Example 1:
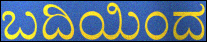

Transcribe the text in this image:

ಬದಿಯಿಂದ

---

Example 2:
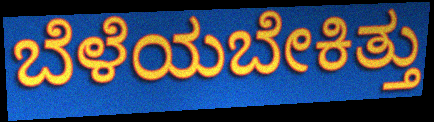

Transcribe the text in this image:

ಬೆಳೆಯಬೇಕಿತ್ತು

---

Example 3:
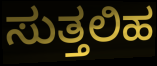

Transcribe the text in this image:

ಸುತ್ತಲಿಹ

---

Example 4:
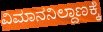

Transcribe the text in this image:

ವಿಮಾನನಿಲ್ದಾಣಕ್ಕೆ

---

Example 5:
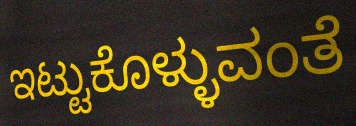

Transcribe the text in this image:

ಇಟ್ಟುಕೊಳ್ಳುವಂತೆ